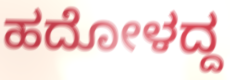
ಹದೋಳದ್ದ